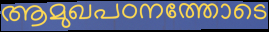
ആമുഖപഠനത്തോടെ